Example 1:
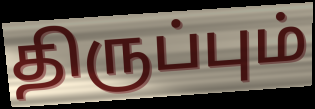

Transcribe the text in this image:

திருப்பும்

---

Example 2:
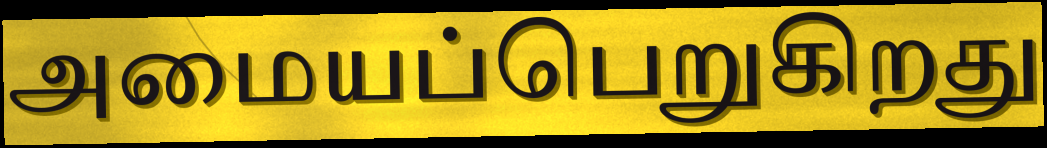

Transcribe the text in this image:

அமையப்பெறுகிறது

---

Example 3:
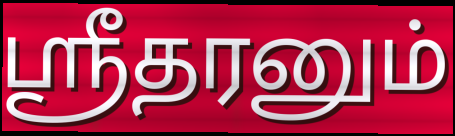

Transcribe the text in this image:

ஸ்ரீதரனும்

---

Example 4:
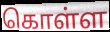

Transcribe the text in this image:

கொள்ள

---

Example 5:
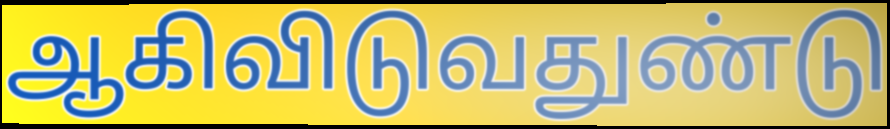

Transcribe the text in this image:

ஆகிவிடுவதுண்டு